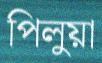
পিলুয়া